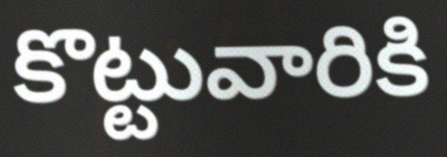
కొట్టువారికి